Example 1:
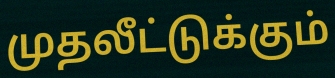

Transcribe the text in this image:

முதலீட்டுக்கும்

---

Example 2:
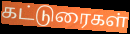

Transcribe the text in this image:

கட்டுரைகள்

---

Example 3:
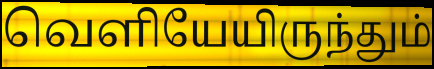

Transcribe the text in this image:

வெளியேயிருந்தும்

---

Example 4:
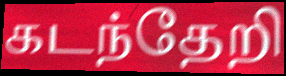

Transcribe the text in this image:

கடந்தேறி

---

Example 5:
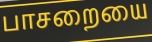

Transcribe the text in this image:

பாசறையை